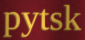
pytsk